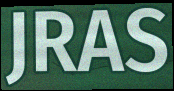
JRAS